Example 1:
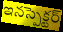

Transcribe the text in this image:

ఇనస్పెక్టర్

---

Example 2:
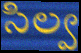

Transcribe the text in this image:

సిల్వ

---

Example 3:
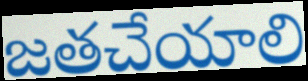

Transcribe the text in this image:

జతచేయాలి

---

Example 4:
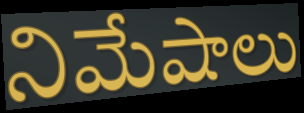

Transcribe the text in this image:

నిమేషాలు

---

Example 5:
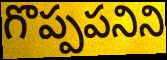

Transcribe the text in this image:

గొప్పపనిని